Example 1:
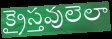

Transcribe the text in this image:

క్రైస్తవులెలా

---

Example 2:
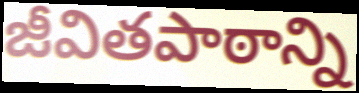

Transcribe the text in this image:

జీవితపాఠాన్ని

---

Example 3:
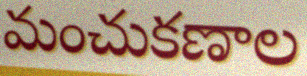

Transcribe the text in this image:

మంచుకణాల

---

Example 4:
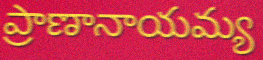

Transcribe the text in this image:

ప్రాణానాయమ్య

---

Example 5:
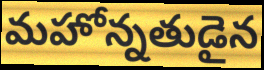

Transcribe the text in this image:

మహోన్నతుడైన